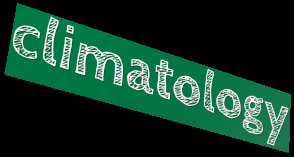
climatology